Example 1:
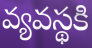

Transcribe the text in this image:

వ్యవస్థకి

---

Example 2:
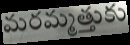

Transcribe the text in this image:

మరమ్మత్తుకు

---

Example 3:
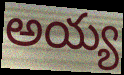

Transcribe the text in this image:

అయ్య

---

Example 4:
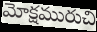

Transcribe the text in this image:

మోక్షమురుచి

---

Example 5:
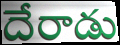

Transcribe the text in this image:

దేరాడు